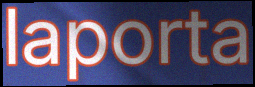
laporta